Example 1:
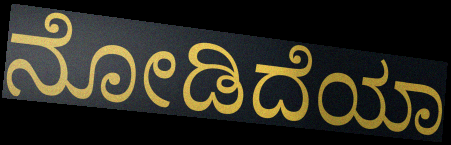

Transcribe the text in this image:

ನೋಡಿದೆಯಾ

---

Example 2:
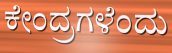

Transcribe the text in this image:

ಕೇಂದ್ರಗಳೆಂದು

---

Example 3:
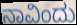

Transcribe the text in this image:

ನಾವಿಂದು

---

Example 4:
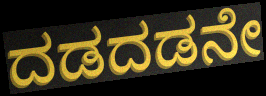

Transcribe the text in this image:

ದಡದಡನೇ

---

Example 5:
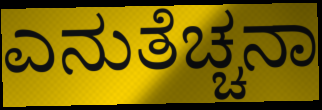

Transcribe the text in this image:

ಎನುತೆಚ್ಚನಾ